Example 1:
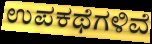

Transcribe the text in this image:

ಉಪಕಥೆಗಳಿವೆ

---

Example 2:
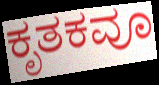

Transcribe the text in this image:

ಕೃತಕವೂ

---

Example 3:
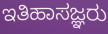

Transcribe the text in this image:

ಇತಿಹಾಸಜ್ಞರು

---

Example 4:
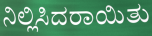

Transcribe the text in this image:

ನಿಲ್ಲಿಸಿದರಾಯಿತು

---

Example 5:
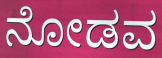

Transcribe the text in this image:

ನೋಡವ